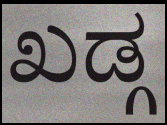
ಖಡ್ಗ